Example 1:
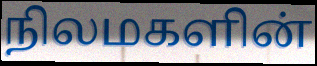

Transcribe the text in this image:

நிலமகளின்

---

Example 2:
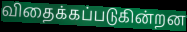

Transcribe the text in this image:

விதைக்கப்படுகின்றன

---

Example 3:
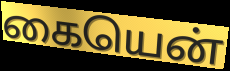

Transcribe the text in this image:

கையென்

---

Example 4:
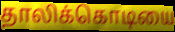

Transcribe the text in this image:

தாலிக்கொடியை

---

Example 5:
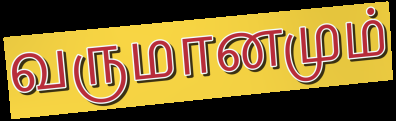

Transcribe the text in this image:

வருமானமும்